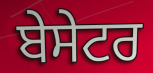
ਬੇਸੇਟਰ